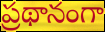
ప్రథానంగా